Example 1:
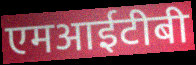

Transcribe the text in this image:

एमआईटीबी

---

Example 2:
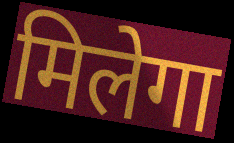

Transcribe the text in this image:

मिलेगा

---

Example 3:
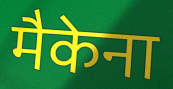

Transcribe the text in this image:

मैकेना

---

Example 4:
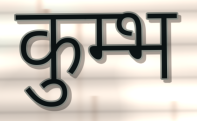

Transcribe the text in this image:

कुम्भ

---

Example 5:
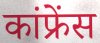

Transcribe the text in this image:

कांफ्रेंस